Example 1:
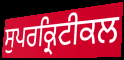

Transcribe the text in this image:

ਸੁਪਰਕ੍ਰਿਟੀਕਲ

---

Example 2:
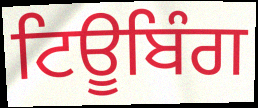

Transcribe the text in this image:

ਟਿਊਬਿੰਗ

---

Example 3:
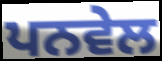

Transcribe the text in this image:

ਪਨਵੇਲ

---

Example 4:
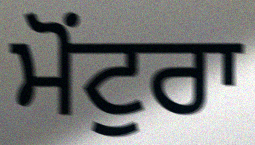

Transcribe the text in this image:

ਮੋਂਟੁਰਾ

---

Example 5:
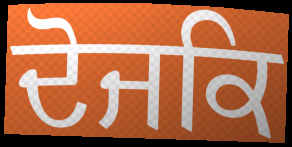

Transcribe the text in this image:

ਦੋਜਕਿ